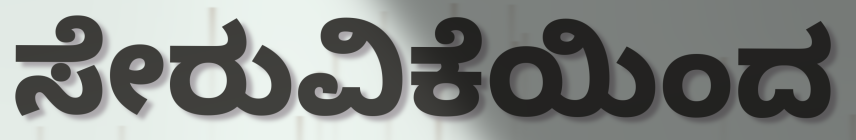
ಸೇರುವಿಕೆಯಿಂದ